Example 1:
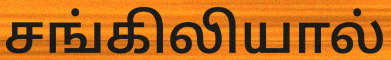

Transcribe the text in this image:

சங்கிலியால்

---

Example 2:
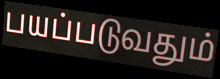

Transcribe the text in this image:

பயப்படுவதும்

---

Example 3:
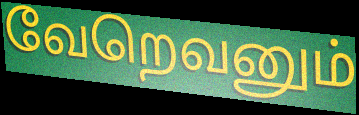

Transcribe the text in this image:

வேறெவனும்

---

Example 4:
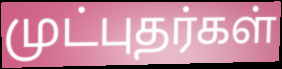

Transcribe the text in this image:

முட்புதர்கள்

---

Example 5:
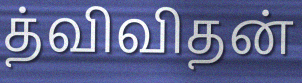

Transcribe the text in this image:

த்விவிதன்